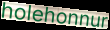
holehonnur